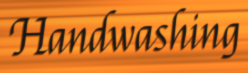
Handwashing